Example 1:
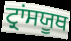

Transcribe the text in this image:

ਟ੍ਰਾਂਸਯੂਥ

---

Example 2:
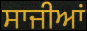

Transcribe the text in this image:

ਸਾਜੀਆਂ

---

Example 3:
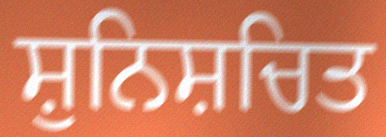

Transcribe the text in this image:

ਸ਼ੁਨਿਸ਼ਚਿਤ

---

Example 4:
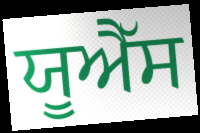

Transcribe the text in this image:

ਯੂਐੱਸ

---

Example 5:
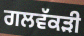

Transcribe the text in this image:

ਗਲਵੱਕਡ਼ੀ